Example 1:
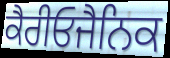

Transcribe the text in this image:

ਕੈਰੀਓਜੈਨਿਕ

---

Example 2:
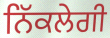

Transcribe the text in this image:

ਨਿੱਕਲੇਗੀ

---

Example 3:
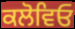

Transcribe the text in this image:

ਕਲੋਵਿਓ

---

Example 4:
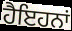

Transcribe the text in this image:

ਹੈਇਹਨਾਂ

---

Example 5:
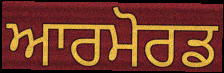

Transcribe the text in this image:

ਆਰਮੋਰਡ